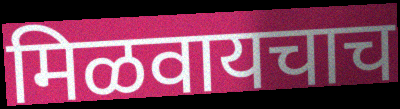
मिळवायचाच